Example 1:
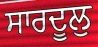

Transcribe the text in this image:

ਸਾਰਦੂਲੁ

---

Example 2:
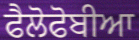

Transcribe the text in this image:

ਫੈਲੋਫੋਬੀਆ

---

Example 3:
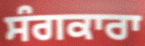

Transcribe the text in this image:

ਸੰਗਕਾਰਾ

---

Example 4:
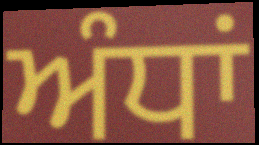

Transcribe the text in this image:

ਅੰਧਾਂ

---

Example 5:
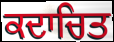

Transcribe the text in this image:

ਕਦਾਚਿਤ